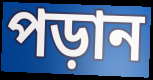
পড়ান